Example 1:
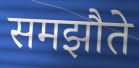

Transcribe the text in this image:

समझौते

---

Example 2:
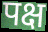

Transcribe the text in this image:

पक्ष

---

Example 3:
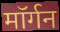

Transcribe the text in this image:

मॉर्गन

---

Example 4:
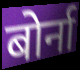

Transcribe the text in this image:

बोर्ना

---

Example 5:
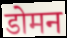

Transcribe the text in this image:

डोमन